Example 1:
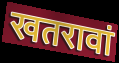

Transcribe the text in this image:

खतरावां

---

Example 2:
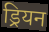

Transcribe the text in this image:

ड्रियन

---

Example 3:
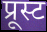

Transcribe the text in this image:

प्रूस्ट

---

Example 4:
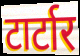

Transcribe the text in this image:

टार्टार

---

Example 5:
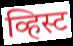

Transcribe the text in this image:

व्हिस्ट